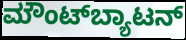
ಮೌಂಟ್‌ಬ್ಯಾಟನ್